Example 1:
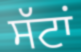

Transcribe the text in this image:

ਸੱਟਾਂ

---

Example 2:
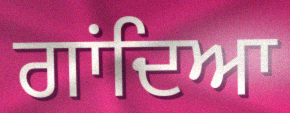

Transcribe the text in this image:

ਗਾਂਦਿਆ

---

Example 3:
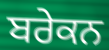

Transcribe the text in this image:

ਬਰੇਕਨ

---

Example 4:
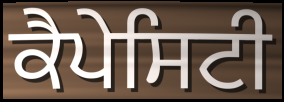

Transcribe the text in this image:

ਕੈਪੇਸਿਟੀ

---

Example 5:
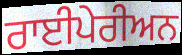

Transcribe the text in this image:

ਰਾਈਪੇਰੀਅਨ